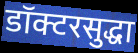
डॉक्टरसुद्धा